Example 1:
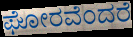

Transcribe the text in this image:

ಘೋರವೆಂದರೆ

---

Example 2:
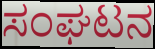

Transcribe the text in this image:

ಸಂಘಟನ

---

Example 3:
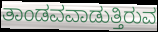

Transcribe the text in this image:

ತಾಂಡವವಾಡುತ್ತಿರುವ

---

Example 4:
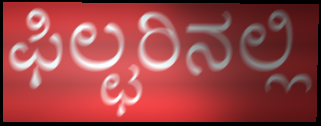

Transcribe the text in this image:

ಫಿಲ್ಟರಿನಲ್ಲಿ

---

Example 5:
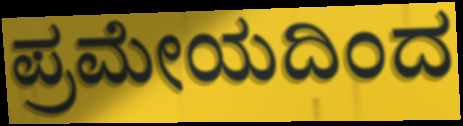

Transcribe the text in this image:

ಪ್ರಮೇಯದಿಂದ